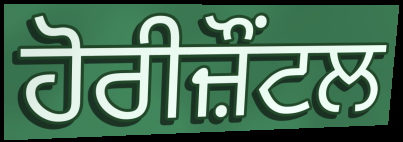
ਹੋਰੀਜ਼ੌਂਟਲ